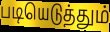
படியெடுத்தும்